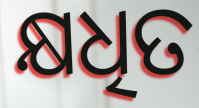
କ୍ଷଧିତ